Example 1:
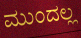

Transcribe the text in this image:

ಮುಂದಲ್ಲ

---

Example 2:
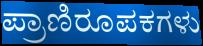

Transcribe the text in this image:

ಪ್ರಾಣಿರೂಪಕಗಳು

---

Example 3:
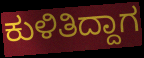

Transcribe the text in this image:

ಕುಳಿತಿದ್ದಾಗ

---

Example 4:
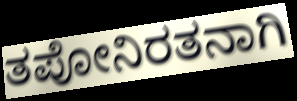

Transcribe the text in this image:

ತಪೋನಿರತನಾಗಿ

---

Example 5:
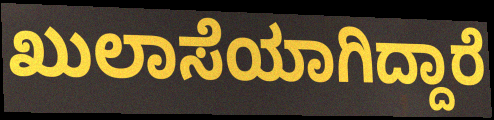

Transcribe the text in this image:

ಖುಲಾಸೆಯಾಗಿದ್ದಾರೆ